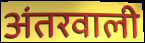
अंतरवाली